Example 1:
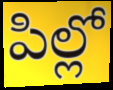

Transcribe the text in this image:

పిల్లో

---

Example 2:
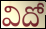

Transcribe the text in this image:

విదో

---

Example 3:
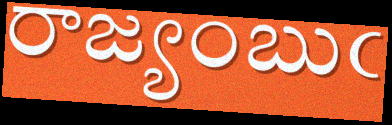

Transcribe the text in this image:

రాజ్యంబుఁ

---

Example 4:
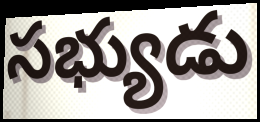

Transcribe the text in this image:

సభ్యుడు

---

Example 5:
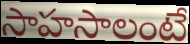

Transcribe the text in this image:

సాహసాలంటే